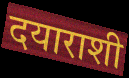
दयाराशी